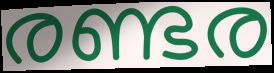
രണ്ടര